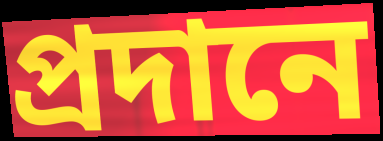
প্ৰদানে